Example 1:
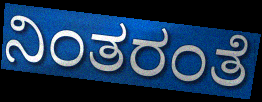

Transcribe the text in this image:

ನಿಂತರಂತೆ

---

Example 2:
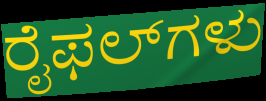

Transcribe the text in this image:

ರೈಫಲ್‌ಗಳು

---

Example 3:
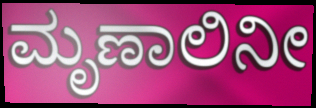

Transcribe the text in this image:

ಮೃಣಾಲಿನೀ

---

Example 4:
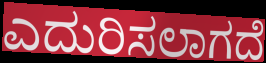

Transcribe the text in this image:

ಎದುರಿಸಲಾಗದೆ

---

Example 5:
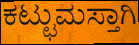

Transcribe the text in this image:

ಕಟ್ಟುಮಸ್ತಾಗಿ